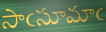
సాఁసూమాఁ